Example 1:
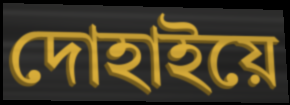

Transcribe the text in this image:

দোহাইয়ে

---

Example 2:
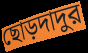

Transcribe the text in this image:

ছোড়দাদুর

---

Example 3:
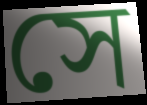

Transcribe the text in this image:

সে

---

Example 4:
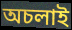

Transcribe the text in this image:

অচলাই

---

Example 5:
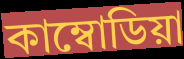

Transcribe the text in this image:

কাম্বোডিয়া